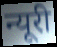
न्यूरी